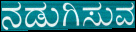
ನಡುಗಿಸುವ